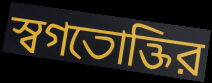
স্বগতোক্তির